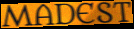
MADEST